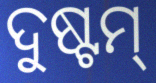
ଦୁଷ୍ଟମ୍